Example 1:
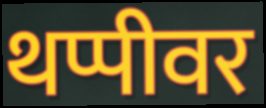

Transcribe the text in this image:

थप्पीवर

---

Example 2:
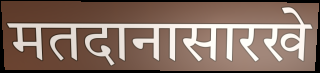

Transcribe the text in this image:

मतदानासारखे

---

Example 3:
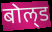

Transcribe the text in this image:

बोल्ड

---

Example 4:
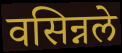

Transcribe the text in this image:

वसिन्नले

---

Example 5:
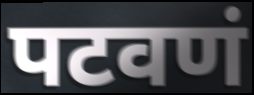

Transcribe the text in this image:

पटवणं